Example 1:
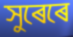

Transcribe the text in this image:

সুৰেৰে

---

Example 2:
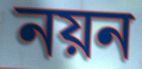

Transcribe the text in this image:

নয়ন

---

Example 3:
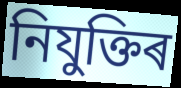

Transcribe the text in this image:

নিযুক্তিৰ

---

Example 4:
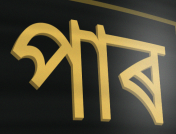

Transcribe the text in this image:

পাৰ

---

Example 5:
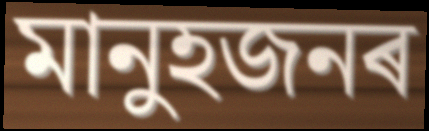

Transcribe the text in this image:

মানুহজনৰ